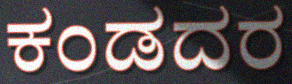
ಕಂಡದರ